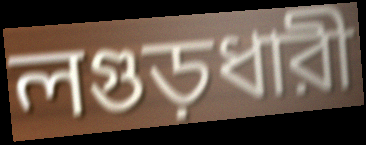
লগুড়ধারী